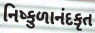
નિષ્કુળાનંદકૃત